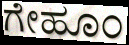
ಗೇಹೂಂ